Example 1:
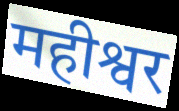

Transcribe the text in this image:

महीश्वर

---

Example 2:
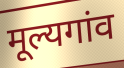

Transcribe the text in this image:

मूल्यगांव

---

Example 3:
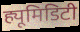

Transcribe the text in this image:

ह्यूमिडिटी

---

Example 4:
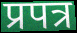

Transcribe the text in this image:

प्रपत्र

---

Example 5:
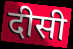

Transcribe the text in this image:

दीसी